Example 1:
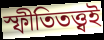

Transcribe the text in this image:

স্ফীতিতত্ত্বই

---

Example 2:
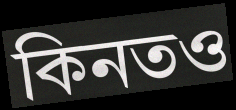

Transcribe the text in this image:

কিনতও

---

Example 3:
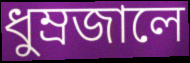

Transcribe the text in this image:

ধুম্রজালে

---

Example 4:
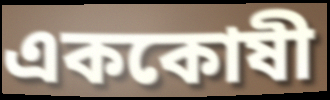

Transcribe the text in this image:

এককোষী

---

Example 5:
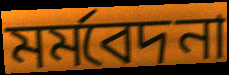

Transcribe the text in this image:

মর্মবেদনা